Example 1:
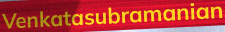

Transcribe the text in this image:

Venkatasubramanian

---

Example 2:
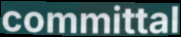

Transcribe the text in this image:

committal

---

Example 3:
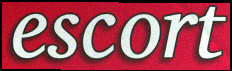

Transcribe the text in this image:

escort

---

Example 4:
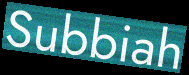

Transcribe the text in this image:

Subbiah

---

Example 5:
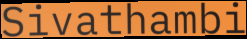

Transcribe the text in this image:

Sivathambi